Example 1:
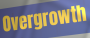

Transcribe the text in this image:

Overgrowth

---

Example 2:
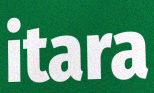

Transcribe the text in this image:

itara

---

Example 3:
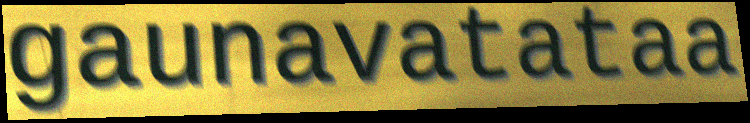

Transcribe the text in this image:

gaunavatataa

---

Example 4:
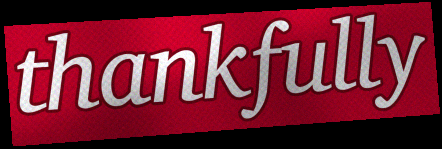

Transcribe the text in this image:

thankfully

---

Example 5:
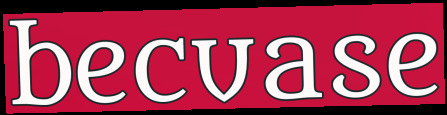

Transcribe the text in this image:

becuase